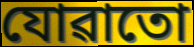
যোৱাতো